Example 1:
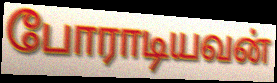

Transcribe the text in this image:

போராடியவன்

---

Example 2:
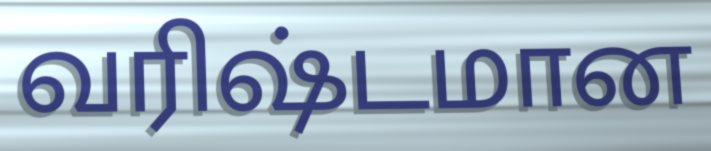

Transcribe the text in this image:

வரிஷ்டமான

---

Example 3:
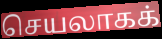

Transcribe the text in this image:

செயலாகக்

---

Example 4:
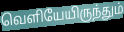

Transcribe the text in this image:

வெளியேயிருந்தும்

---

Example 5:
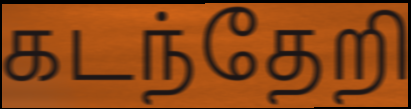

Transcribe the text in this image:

கடந்தேறி